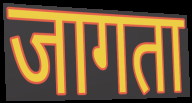
जागता